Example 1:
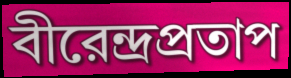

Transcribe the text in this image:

বীরেন্দ্রপ্রতাপ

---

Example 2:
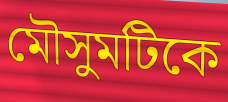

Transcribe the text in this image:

মৌসুমটিকে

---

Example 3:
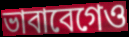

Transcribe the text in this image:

ভাবাবেগেও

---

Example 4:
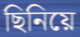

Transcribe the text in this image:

ছিনিয়ে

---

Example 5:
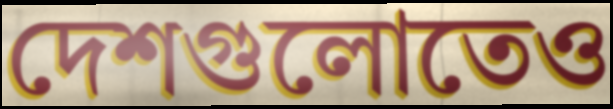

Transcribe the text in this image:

দেশগুলোতেও